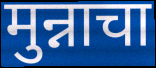
मुन्नाचा